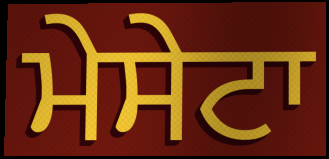
ਮੇਸੇਟਾ